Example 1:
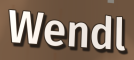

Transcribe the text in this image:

Wendl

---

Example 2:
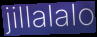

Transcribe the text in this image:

jillalalo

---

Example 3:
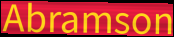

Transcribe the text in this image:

Abramson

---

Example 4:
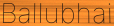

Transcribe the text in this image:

Ballubhai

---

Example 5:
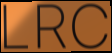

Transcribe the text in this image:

LRC